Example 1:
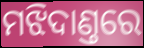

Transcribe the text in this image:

ମଝିଦାଣ୍ତରେ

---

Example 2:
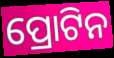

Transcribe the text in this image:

ପ୍ରୋଟିନ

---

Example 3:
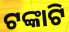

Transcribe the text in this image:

ଟଙ୍କାଟି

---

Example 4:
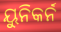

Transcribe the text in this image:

ୟୁନିକର୍ନ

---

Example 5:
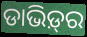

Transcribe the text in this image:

ଡାଭିଡ଼୍‍ର